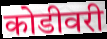
कोडीवरी